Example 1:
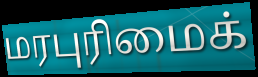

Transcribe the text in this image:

மரபுரிமைக்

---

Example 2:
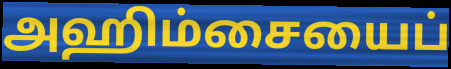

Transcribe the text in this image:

அஹிம்சையைப்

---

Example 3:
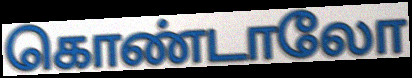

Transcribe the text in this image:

கொண்டாலோ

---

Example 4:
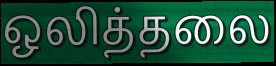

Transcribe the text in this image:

ஒலித்தலை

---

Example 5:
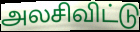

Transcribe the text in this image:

அலசிவிட்டு